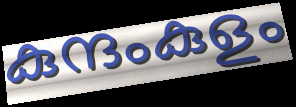
കുന്ദംകുളം